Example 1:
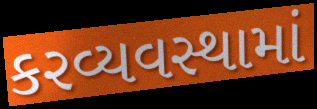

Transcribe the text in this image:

કરવ્યવસ્થામાં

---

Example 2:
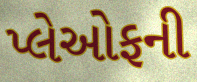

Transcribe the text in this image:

પ્લેઓફની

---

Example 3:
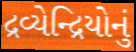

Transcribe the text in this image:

દ્રવ્યેન્દ્રિયોનું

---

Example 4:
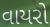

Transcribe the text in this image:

વાયરો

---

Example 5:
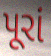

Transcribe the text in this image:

પૂરાં